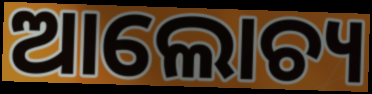
ଆଲୋଚ୍ୟ